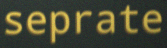
seprate